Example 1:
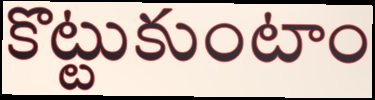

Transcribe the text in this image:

కొట్టుకుంటాం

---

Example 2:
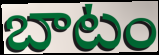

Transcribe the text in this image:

బాటం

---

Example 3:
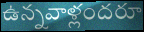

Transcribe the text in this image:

ఉన్నవాళ్లందరూ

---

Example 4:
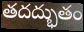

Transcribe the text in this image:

తదద్భుతం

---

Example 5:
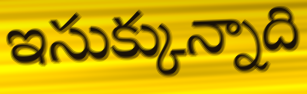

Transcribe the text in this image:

ఇసుక్కున్నాది